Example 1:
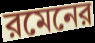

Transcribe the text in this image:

রমেনের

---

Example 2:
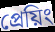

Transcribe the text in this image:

প্রেয়িং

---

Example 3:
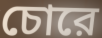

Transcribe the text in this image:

চোরে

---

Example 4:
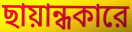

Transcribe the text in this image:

ছায়ান্ধকারে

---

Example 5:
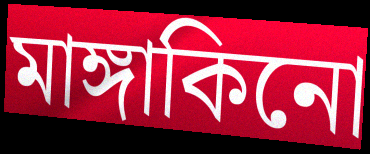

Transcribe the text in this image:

মাঙ্গাকিনো